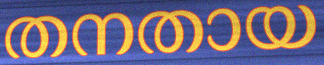
തനതായ